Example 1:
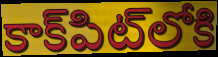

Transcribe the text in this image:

కాక్‌పిట్‌లోకి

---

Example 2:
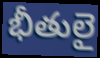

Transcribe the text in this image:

భీతులై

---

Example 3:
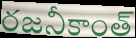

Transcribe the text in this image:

రజనీకాంత్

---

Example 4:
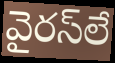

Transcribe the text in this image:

వైరస్‌లే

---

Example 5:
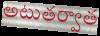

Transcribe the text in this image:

అటుతర్వాత